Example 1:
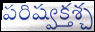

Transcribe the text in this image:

పరిష్వక్తశ్చ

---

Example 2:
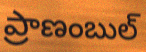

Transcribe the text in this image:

ప్రాణంబుల్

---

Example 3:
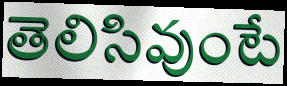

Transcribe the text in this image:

తెలిసివుంటే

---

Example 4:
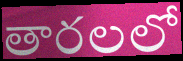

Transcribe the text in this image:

తారలలో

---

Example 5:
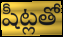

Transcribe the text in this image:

షీట్లతో